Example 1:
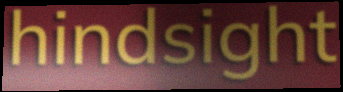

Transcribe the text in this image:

hindsight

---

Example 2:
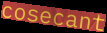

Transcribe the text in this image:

cosecant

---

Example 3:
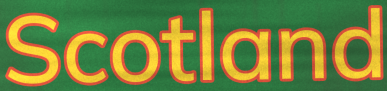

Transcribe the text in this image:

Scotland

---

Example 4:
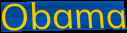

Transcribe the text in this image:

Obama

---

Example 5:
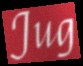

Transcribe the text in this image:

Jug